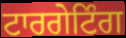
ਟਾਰਗੇਟਿੰਗ